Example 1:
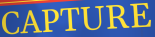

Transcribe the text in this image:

CAPTURE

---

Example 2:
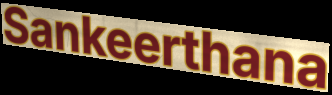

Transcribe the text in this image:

Sankeerthana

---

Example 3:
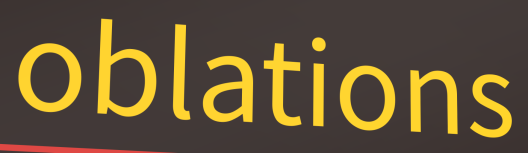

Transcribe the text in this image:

oblations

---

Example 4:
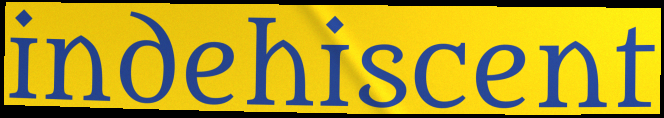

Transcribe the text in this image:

indehiscent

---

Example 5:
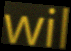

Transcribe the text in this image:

wil